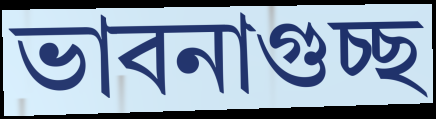
ভাবনাগুচ্ছ